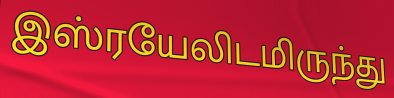
இஸ்ரயேலிடமிருந்து